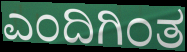
ಎಂದಿಗಿಂತ